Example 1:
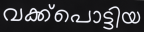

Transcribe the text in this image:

വക്ക്പൊട്ടിയ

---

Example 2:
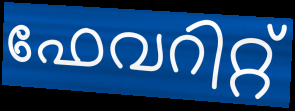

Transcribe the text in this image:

ഫേവറിറ്റ്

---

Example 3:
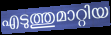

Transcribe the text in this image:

എടുത്തുമാറ്റിയ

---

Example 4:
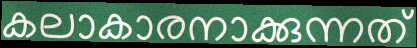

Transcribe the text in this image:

കലാകാരനാക്കുന്നത്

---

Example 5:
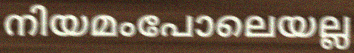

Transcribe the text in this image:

നിയമംപോലെയല്ല